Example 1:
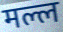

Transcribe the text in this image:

मल्ल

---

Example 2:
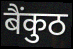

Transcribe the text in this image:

बैंकुठ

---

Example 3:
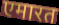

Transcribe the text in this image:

एमारत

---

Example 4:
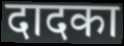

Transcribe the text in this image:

दादका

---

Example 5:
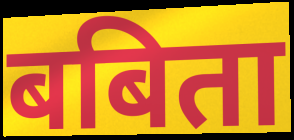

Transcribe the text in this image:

बबिता